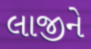
લાજીને